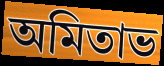
অমিতাভ